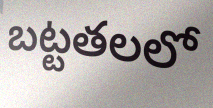
బట్టతలలో